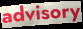
advisory